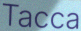
Tacca